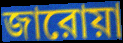
জারোয়া